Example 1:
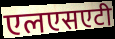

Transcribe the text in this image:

एलएसएटी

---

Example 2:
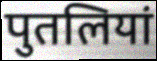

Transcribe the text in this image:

पुतलियां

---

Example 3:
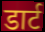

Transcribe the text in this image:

डार्ट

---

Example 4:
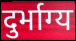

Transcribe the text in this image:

दुर्भाग्य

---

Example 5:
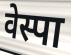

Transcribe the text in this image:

वेस्पा